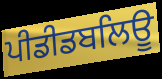
ਪੀਡੀਡਬਲਿਊ